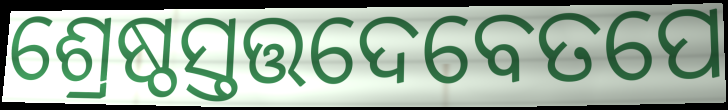
ଶ୍ରେଷ୍ଠସ୍ତତ୍ତଦେବେତପେ